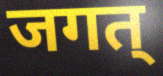
जगत्